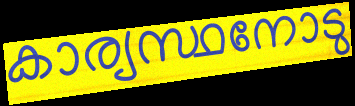
കാര്യസ്ഥനോടു